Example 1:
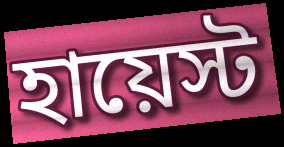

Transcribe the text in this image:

হায়েস্ট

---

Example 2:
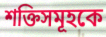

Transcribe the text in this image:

শক্তিসমূহকে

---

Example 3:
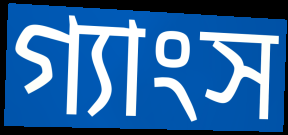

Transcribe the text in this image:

গ্যাংস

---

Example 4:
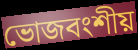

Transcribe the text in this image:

ভোজবংশীয়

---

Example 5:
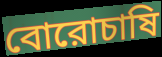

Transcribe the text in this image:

বোরোচাষি